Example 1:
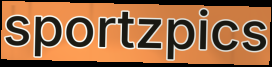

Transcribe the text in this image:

sportzpics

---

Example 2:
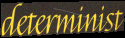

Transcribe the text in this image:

determinist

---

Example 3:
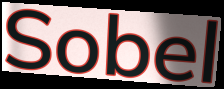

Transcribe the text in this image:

Sobel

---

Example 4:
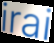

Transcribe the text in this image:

irai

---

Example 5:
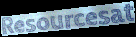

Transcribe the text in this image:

Resourcesat